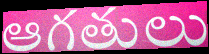
ఆగతులు